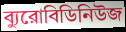
ব্যুরোবিডিনিউজ